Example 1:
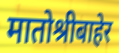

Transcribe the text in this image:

मातोश्रीबाहेर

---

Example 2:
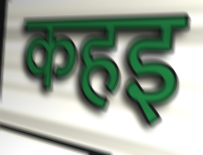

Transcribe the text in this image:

कहइ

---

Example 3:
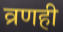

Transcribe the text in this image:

व्रणही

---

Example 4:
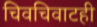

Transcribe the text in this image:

चिवचिवाटही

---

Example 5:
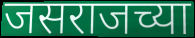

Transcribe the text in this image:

जसराजच्या